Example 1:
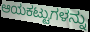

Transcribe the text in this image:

ಆಯಕಟ್ಟುಗಳನ್ನು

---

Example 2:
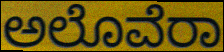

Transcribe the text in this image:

ಅಲೊವೆರಾ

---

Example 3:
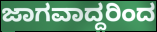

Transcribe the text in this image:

ಜಾಗವಾದ್ದರಿಂದ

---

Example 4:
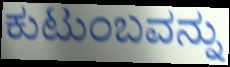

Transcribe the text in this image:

ಕುಟುಂಬವನ್ನು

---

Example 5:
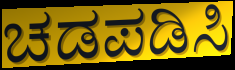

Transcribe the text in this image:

ಚಡಪಡಿಸಿ